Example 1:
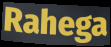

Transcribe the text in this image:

Rahega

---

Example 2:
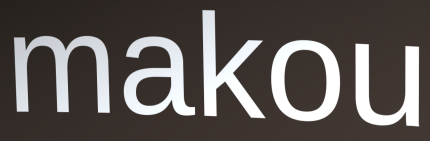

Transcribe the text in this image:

makou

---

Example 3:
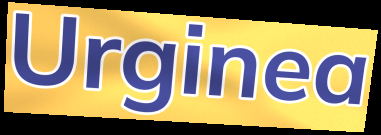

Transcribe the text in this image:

Urginea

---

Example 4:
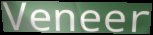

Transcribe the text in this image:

Veneer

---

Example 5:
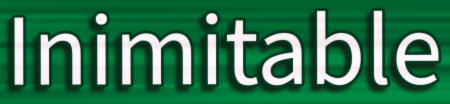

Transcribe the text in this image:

Inimitable